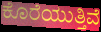
ಕೊರೆಯುತ್ತಿವೆ